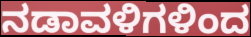
ನಡಾವಳಿಗಳಿಂದ